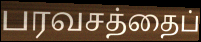
பரவசத்தைப்